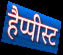
हैप्पीस्ट